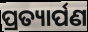
ପ୍ରତ୍ୟାର୍ପଣ